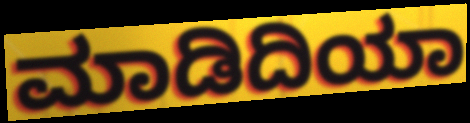
ಮಾಡಿದಿಯಾ